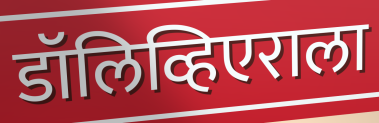
डॉलिव्हिएराला